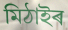
মিঠাইৰ